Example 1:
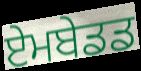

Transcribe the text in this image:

ਏਮਬੇਡਡ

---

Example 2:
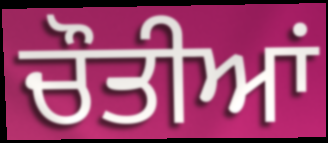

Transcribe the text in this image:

ਚੌਤੀਆਂ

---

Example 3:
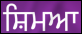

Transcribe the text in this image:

ਸ਼ਿਮਆ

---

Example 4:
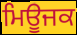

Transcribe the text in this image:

ਮਿਊਜਕ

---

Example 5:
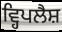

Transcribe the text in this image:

ਵ੍ਹਿਪਲੈਸ਼